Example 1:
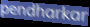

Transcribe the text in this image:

pendharkar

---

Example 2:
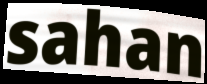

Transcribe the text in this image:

sahan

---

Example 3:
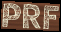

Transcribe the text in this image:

PRF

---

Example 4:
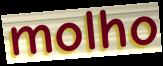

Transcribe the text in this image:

molho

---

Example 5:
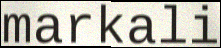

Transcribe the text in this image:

markali